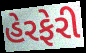
હેરફેરી